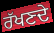
ਰੱਖਣਦੇ